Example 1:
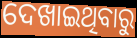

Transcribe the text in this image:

ଦେଖାଇଥିବାରୁ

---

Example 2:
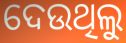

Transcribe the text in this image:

ଦେଉଥିଲୁ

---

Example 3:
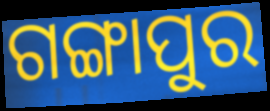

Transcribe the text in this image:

ଗଙ୍ଗାପୁର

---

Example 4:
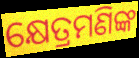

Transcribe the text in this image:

କ୍ଷେତ୍ରମଣିଙ୍କ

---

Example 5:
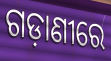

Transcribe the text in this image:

ଗଡ଼ାଣୀରେ